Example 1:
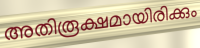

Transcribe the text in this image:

അതിരൂക്ഷമായിരിക്കും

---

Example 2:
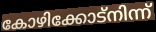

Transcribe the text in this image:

കോഴിക്കോട്നിന്ന്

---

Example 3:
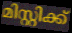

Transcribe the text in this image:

മിസ്റ്റിക്ക്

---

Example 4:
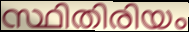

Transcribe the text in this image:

സ്ഥിതിരിയം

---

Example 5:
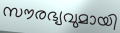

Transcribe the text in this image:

സൗരഭ്യവുമായി